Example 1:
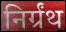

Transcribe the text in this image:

निर्ग्रंथ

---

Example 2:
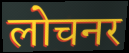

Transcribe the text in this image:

लोचनर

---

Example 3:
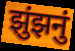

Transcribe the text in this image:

झुंझनुं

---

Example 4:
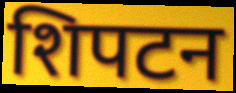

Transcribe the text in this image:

शिपटन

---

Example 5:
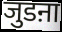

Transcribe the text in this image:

जुडऩा